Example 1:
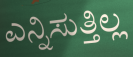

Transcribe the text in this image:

ಎನ್ನಿಸುತ್ತಿಲ್ಲ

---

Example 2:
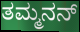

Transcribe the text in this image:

ತಮ್ಮನನ್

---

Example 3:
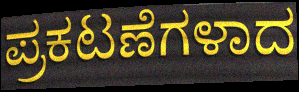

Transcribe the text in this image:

ಪ್ರಕಟಣೆಗಳಾದ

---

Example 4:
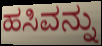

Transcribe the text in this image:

ಹಸಿವನ್ನು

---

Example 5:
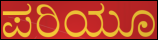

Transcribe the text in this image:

ಪರಿಯೂ